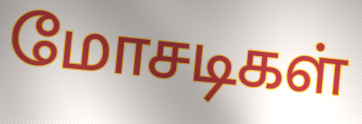
மோசடிகள்